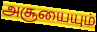
அசூயையும்